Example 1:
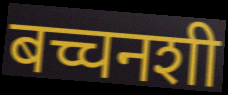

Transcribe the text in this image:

बच्चनशी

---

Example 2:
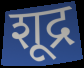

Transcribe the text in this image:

शूद्र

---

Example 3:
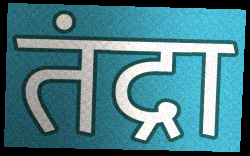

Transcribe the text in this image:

तंद्रा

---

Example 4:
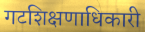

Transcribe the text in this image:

गटशिक्षणाधिकारी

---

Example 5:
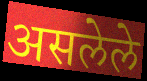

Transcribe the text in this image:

असलेले